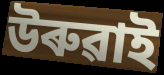
উৰুৱাই